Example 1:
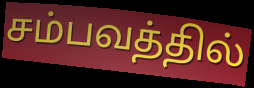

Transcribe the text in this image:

சம்பவத்தில்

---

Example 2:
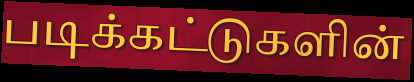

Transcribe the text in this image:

படிக்கட்டுகளின்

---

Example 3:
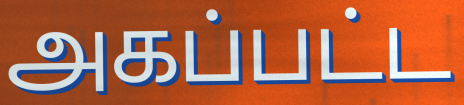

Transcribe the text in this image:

அகப்பட்ட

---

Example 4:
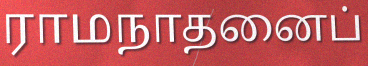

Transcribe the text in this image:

ராமநாதனைப்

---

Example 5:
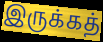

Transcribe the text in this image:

இருக்கத்